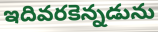
ఇదివరకెన్నడును